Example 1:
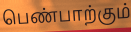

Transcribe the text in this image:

பெண்பாற்கும்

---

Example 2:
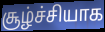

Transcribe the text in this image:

சூழ்ச்சியாக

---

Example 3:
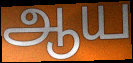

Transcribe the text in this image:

ஆய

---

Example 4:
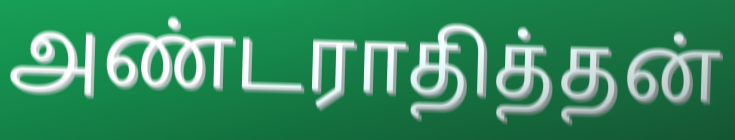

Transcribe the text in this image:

அண்டராதித்தன்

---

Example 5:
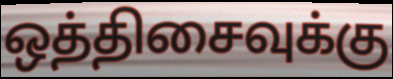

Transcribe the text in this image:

ஒத்திசைவுக்கு